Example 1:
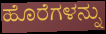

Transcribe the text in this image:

ಹೊರೆಗಳನ್ನು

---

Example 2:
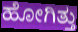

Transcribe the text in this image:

ಹೋಗಿತ್ತು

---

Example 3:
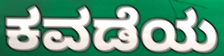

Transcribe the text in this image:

ಕವಡೆಯ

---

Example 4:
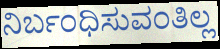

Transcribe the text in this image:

ನಿರ್ಬಂಧಿಸುವಂತಿಲ್ಲ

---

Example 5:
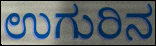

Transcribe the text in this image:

ಉಗುರಿನ